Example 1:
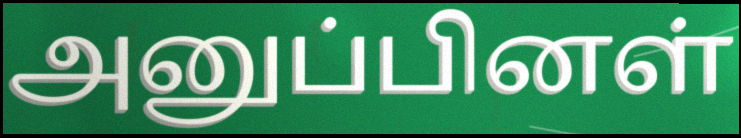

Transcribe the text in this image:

அனுப்பினள்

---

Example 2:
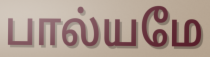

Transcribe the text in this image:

பால்யமே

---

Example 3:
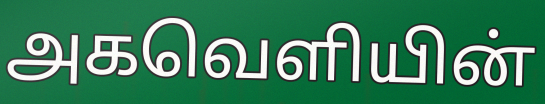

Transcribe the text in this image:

அகவெளியின்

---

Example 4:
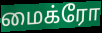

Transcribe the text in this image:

மைக்ரோ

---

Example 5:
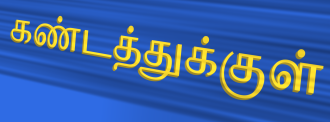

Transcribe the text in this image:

கண்டத்துக்குள்